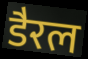
डैरल